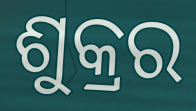
ଶୁକ୍ରର